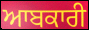
ਆਬਕਾਰੀ